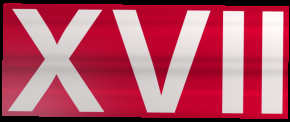
XVII